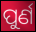
ପୁର୍ଣ